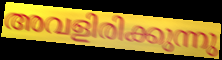
അവളിരിക്കുന്നു